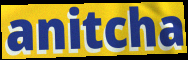
anitcha